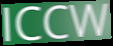
ICCW